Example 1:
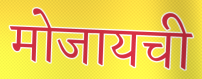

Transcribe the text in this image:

मोजायची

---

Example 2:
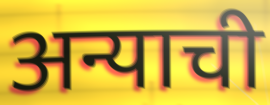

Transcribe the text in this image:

अन्याची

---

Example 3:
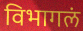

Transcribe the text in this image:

विभागलं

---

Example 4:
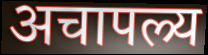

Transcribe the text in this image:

अचापल्य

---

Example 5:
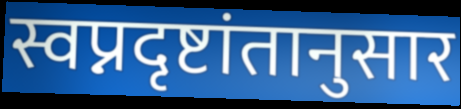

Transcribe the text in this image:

स्वप्नदृष्टांतानुसार